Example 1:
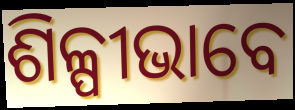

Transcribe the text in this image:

ଶିଳ୍ପୀଭାବେ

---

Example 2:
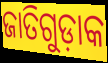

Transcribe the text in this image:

ଜାତିଗୁଡ଼ାକ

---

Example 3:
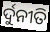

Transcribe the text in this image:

ର୍ଦୁନୀତି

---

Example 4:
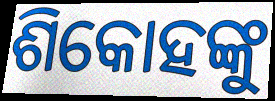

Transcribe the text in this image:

ଶିକୋହଙ୍କୁ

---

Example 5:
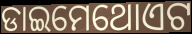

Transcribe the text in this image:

ଡାଇମେଥୋଏଟ